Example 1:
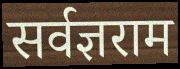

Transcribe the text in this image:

सर्वज्ञराम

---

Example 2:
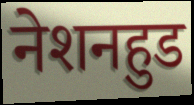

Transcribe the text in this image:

नेशनहुड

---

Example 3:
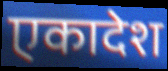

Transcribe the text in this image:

एकादेश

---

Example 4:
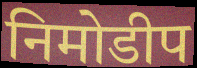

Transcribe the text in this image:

निमोडीप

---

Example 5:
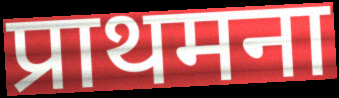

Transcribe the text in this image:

प्राथमना